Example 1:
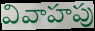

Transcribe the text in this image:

వివాహపు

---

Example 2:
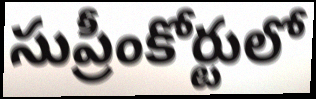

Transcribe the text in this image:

సుప్రీంకోర్టులో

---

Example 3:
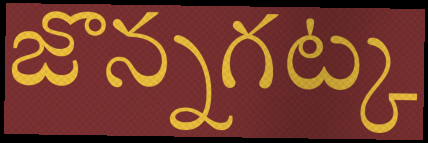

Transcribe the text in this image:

జొన్నగట్క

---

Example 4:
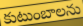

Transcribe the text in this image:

కుటుంబాలను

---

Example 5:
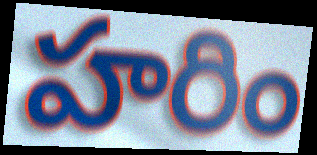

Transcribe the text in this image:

హరిం